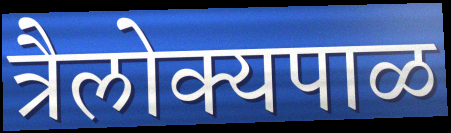
त्रैलोक्यपाळ